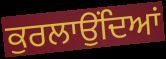
ਕੁਰਲਾਉਂਦਿਆਂ